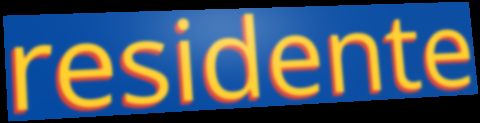
residente